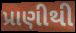
પ્રાણીથી